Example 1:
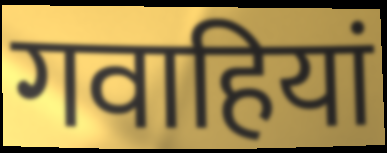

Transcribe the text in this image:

गवाहियां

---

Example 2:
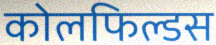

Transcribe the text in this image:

कोलफिल्डस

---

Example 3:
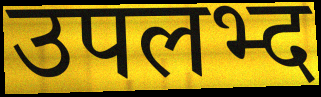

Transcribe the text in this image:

उपलभ्द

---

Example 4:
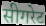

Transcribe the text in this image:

सीगरेट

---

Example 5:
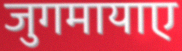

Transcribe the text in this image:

जुगमायाए